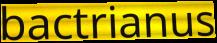
bactrianus